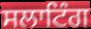
ਸਲਾਟਿੰਗ